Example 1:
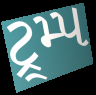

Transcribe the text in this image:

ટ્ર્મ્પ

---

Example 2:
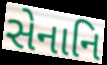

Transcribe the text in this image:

સેનાનિ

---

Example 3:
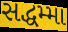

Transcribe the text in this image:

સદ્ધમ્મા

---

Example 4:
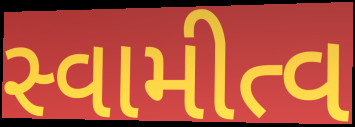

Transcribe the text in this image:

સ્વામીત્વ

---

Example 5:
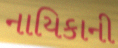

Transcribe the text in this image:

નાયિકાની